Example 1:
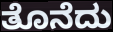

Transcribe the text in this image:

ತೊನೆದು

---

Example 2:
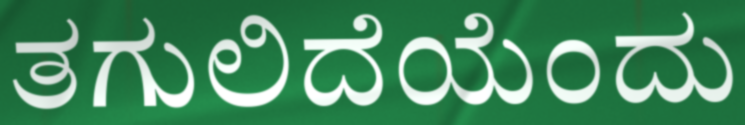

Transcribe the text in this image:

ತಗುಲಿದೆಯೆಂದು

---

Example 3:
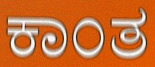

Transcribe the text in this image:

ಕಾಂತ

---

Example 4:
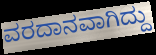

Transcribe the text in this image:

ವರದಾನವಾಗಿದ್ದು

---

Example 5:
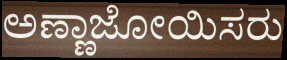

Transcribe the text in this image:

ಅಣ್ಣಾಜೋಯಿಸರು